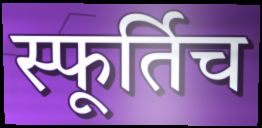
स्फूर्तिच